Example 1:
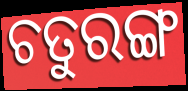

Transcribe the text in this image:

ଚତୁରଙ୍ଗ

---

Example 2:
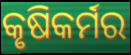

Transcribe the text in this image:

କୃଷିକର୍ମର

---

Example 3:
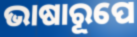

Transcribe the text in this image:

ଭାଷାରୂପେ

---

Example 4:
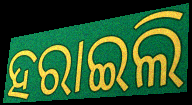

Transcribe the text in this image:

ହରାଇଲି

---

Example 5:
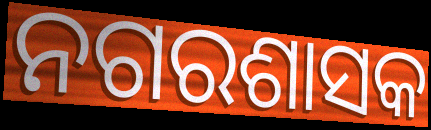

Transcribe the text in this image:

ନଗରଶାସକ